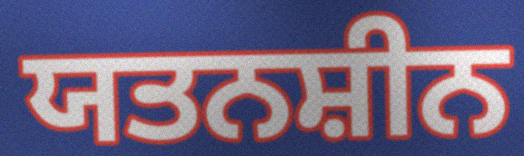
ਯਤਨਸ਼ੀਨ